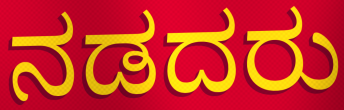
ನಡದರು